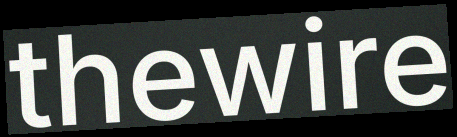
thewire